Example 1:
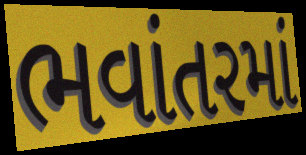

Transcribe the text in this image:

ભવાંતરમાં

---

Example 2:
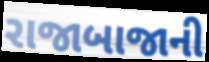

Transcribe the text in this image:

રાજાબાજાની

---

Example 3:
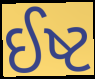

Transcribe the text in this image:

ઈષ્ટ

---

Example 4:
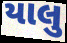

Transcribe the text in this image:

યાલુ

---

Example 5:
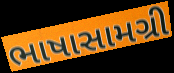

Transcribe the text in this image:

ભાષાસામગ્રી